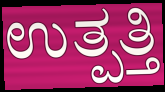
ಉತ್ಪತ್ತಿ